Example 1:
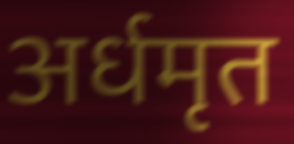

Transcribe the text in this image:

अर्धमृत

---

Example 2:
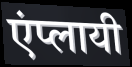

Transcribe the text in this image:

एंप्लायी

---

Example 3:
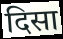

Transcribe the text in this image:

दिसा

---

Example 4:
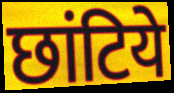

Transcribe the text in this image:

छांटिये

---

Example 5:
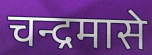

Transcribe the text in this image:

चन्द्रमासे